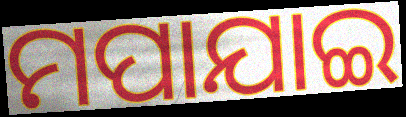
ମପାଯାଇ